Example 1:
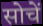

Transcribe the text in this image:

सोचें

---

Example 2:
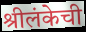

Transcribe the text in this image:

श्रीलंकेची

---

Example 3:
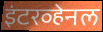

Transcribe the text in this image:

इंटरव्हेनल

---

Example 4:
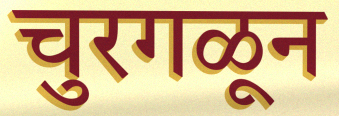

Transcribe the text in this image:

चुरगळून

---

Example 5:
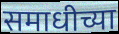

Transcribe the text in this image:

समाधीच्या